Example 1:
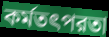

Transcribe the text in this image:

কর্মতৎপরতা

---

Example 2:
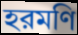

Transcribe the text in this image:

হরমণি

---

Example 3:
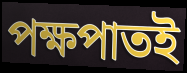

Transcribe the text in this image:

পক্ষপাতই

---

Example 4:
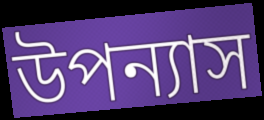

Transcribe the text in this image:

উপন্যাস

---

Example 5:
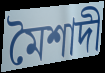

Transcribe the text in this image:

মৈশাদী